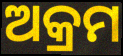
ଅକ୍ରମ